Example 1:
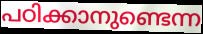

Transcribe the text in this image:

പഠിക്കാനുണ്ടെന്ന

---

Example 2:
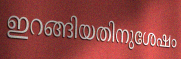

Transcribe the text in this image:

ഇറങ്ങിയതിനുശേഷം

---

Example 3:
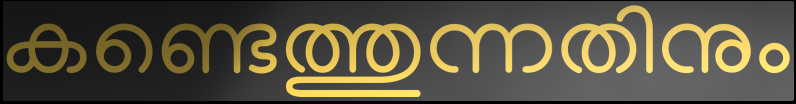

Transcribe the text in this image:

കണ്ടെത്തുന്നതിനും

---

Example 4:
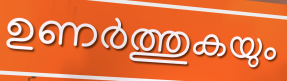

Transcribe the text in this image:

ഉണർത്തുകയും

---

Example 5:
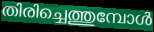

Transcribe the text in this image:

തിരിച്ചെത്തുമ്പോൾ